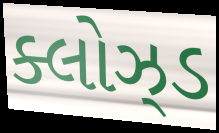
ક્લોઝ્ડ